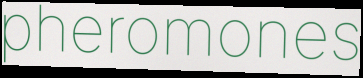
pheromones